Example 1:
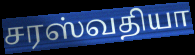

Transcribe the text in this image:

சரஸ்வதியா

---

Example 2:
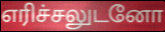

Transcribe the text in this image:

எரிச்சலுடனோ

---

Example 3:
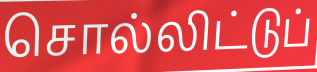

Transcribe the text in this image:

சொல்லிட்டுப்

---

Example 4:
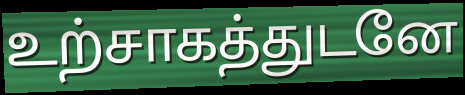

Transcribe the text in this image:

உற்சாகத்துடனே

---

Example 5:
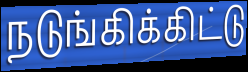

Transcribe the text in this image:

நடுங்கிக்கிட்டு